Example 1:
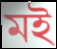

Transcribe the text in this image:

মই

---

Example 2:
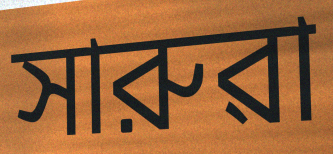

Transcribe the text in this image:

সাৰুৱা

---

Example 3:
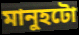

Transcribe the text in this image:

মানুহটো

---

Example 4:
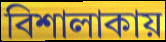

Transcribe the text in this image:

বিশালাকায়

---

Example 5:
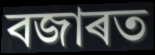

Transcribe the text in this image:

বজাৰত